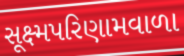
સૂક્ષ્મપરિણામવાળા